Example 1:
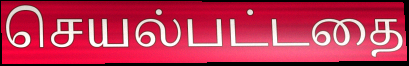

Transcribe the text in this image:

செயல்பட்டதை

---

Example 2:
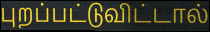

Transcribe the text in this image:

புறப்பட்டுவிட்டால்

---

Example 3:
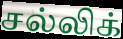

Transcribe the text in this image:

சல்லிக்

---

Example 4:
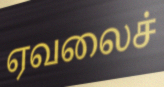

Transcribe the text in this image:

ஏவலைச்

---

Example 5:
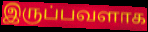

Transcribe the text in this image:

இருப்பவளாக